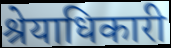
श्रेयाधिकारी